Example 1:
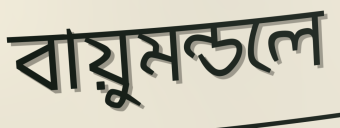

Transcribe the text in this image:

বায়ুমন্ডলে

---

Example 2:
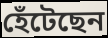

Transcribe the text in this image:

হেঁটেছেন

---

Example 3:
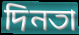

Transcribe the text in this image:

দিনতা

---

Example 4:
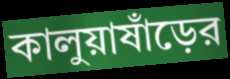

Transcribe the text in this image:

কালুয়াষাঁড়ের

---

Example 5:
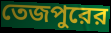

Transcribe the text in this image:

তেজপুরের